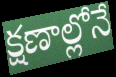
క్షణాల్లోనే